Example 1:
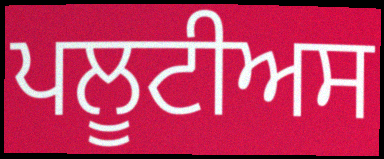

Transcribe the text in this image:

ਪਲੂਟੀਅਸ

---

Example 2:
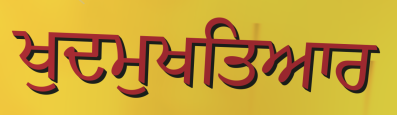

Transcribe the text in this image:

ਖੁਦਮੁਖਤਿਆਰ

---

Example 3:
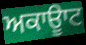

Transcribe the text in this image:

ਅਕਾਊਾਟ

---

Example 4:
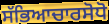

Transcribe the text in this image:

ਸੱਭਿਆਚਾਰਸੋਧੋ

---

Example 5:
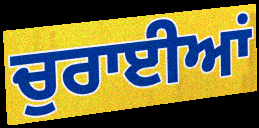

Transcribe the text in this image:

ਚੁਰਾਈਆਂ